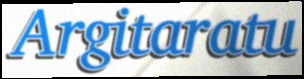
Argitaratu